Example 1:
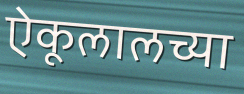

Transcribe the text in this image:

ऐकूलालच्या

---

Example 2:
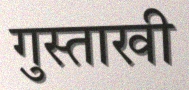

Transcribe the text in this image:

गुस्ताखी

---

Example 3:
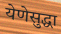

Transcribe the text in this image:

येणेसुद्धा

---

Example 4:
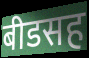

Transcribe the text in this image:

बीडसह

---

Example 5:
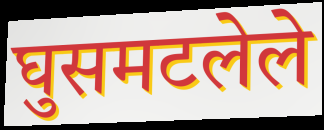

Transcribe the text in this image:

घुसमटलेले